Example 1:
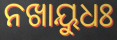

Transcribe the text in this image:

ନଖାୟୁଧଃ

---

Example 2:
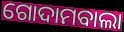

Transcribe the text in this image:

ଗୋଦାମବାଲା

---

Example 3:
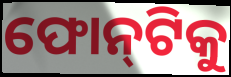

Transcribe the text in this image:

ଫୋନ୍‌ଟିକୁ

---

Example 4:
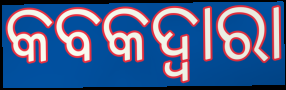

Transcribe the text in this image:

କବକଦ୍ୱାରା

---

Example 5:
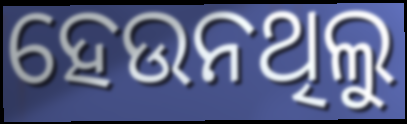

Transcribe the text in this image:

ହେଉନଥିଲୁ